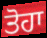
ਤੋਹਾ